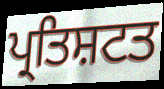
ਪ੍ਰਤਿਸ਼ਟਤ